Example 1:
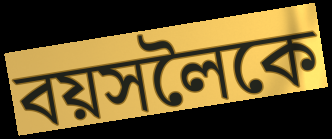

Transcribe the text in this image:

বয়সলৈকে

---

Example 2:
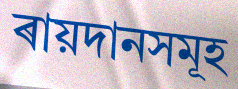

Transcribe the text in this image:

ৰায়দানসমূহ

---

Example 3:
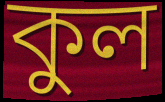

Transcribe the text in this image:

কুল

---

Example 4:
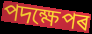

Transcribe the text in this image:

পদক্ষেপৰ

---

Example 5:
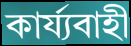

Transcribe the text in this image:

কাৰ্য্যবাহী